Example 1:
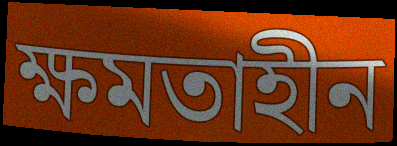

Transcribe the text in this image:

ক্ষমতাহীন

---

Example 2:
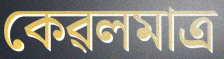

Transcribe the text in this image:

কেৱলমাত্ৰ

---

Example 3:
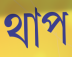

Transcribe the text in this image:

থাপ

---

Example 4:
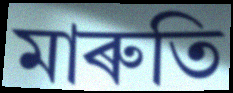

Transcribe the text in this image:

মাৰুতি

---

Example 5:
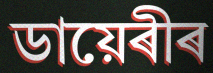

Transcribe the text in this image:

ডায়েৰীৰ